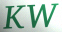
KW